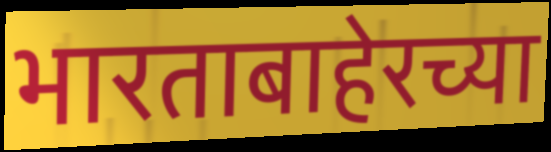
भारताबाहेरच्या